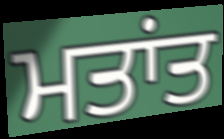
ਮਤਾਂਤ